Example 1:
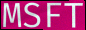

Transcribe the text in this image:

MSFT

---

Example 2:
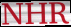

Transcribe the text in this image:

NHR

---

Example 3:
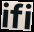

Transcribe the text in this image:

ifi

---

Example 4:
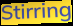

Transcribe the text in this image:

Stirring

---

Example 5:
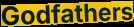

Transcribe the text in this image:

Godfathers